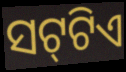
ସଟ୍‍ଟିଏ